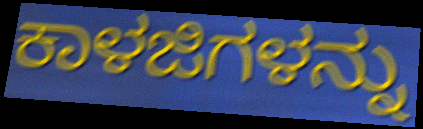
ಕಾಳಜಿಗಳನ್ನು